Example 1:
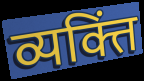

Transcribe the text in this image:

व्यक्तिं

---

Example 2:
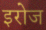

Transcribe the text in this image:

इरोज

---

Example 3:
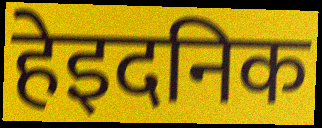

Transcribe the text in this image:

हेइदनिक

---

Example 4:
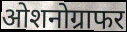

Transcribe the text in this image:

ओशनोग्राफर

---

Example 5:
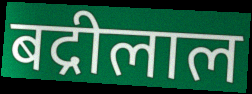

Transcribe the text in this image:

बद्रीलाल